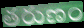
తరుణం